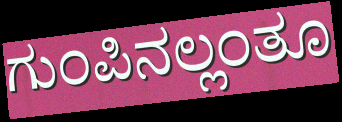
ಗುಂಪಿನಲ್ಲಂತೂ